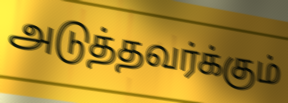
அடுத்தவர்க்கும்